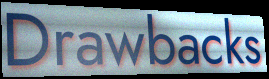
Drawbacks